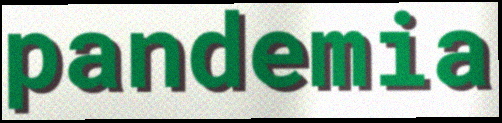
pandemia